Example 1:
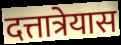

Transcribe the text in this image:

दत्तात्रेयास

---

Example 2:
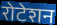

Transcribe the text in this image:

रोटेशन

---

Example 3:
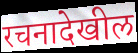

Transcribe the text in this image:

रचनादेखील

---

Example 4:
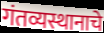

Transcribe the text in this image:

गंतव्यस्थानाचे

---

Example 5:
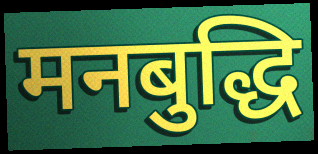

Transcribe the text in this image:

मनबुद्धि